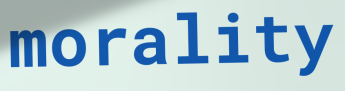
morality